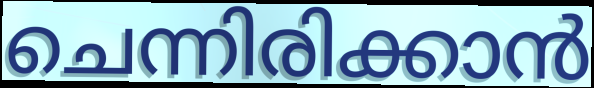
ചെന്നിരിക്കാൻ